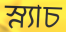
স্ন্যাচ